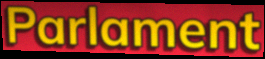
Parlament